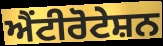
ਐਂਟੀਰੋਟੇਸ਼ਨ